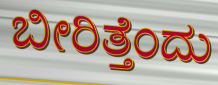
ಬೀರಿತ್ತೆಂದು